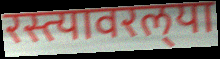
रस्त्यावरल्या